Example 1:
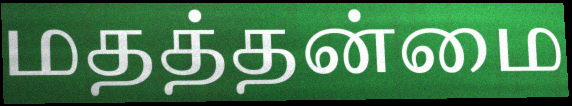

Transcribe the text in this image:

மதத்தன்மை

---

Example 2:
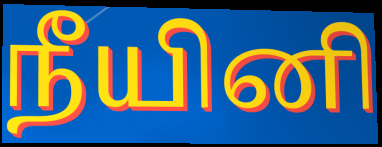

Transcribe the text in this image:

நீயினி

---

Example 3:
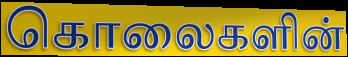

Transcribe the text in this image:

கொலைகளின்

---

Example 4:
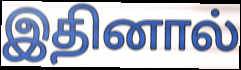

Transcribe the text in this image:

இதினால்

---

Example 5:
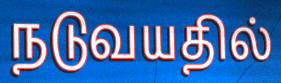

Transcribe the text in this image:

நடுவயதில்